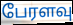
பேரளவு